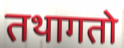
तथागतो